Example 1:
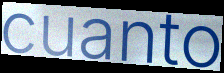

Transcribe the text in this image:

cuanto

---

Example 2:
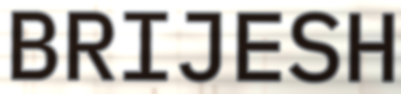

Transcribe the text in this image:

BRIJESH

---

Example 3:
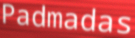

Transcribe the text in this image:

Padmadas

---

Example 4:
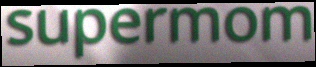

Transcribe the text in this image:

supermom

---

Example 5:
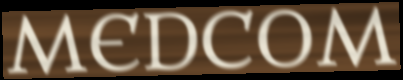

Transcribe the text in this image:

MEDCOM